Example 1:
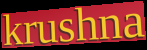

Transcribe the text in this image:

krushna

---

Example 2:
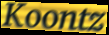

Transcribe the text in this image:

Koontz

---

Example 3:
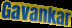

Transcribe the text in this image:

Gavankar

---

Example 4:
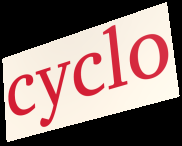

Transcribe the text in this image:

cyclo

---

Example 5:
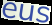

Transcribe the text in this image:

eus